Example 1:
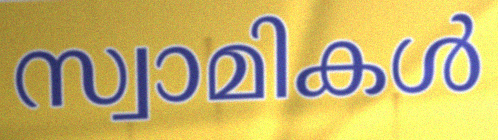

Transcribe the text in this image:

സ്വാമികൾ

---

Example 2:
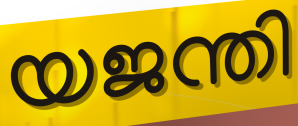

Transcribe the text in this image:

യജന്തി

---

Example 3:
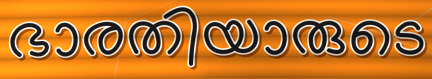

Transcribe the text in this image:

ഭാരതിയാരുടെ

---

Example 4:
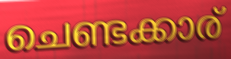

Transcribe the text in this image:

ചെണ്ടക്കാര്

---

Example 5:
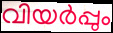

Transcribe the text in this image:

വിയർപ്പും